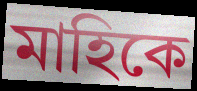
মাহিকে